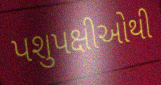
પશુપક્ષીઓથી